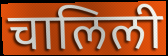
चालिली